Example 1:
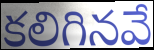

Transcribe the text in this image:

కలిగినవే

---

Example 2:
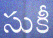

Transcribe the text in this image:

సుకీ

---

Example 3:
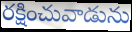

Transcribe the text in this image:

రక్షించువాడును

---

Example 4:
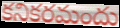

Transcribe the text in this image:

కనికరమందు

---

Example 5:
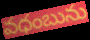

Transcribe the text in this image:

వధంబును